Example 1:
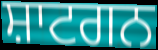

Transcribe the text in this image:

ਸ਼ਾਟਗਨ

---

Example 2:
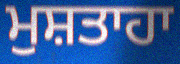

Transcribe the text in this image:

ਮੁਸ਼ਤਾਹਾ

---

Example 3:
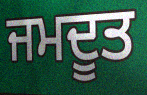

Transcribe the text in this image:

ਜਮਦੂਤ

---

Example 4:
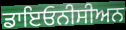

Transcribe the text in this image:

ਡਾਇਓਨੀਸੀਅਨ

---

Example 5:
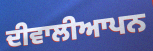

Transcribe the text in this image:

ਦੀਵਾਲੀਆਪਨ